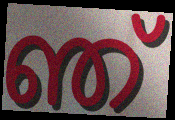
ഞ്